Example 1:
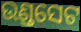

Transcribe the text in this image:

ଉଣ୍ଡସେଟ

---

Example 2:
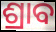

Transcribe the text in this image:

ଶ୍ରାବ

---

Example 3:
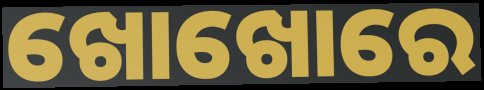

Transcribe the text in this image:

ଖୋଖୋରେ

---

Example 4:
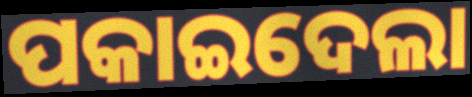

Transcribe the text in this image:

ପକାଇଦେଲା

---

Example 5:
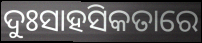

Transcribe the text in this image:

ଦୁଃସାହସିକତାରେ